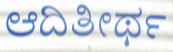
ಆದಿತೀರ್ಥ